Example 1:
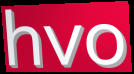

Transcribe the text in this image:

hvo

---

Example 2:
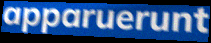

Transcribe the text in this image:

apparuerunt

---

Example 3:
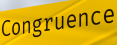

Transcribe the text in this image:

Congruence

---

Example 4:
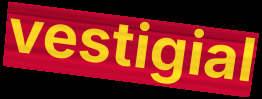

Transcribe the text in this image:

vestigial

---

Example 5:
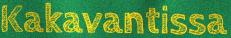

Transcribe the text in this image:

Kakavantissa